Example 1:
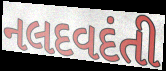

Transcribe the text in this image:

નલદવદંતી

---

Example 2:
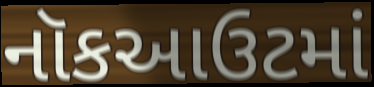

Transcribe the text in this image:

નૉકઆઉટમાં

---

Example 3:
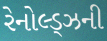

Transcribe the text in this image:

રેનોલ્ડ્ઝની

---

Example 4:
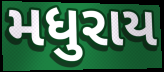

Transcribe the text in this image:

મધુરાય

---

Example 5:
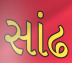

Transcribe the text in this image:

સાંઢ